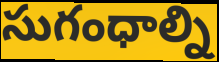
సుగంధాల్ని